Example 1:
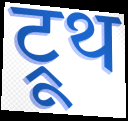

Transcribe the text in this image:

ट्रूथ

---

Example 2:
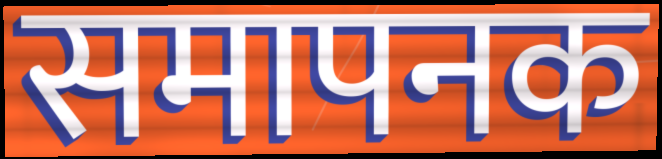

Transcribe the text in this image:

समापनक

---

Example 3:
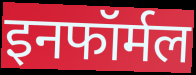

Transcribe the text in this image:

इनफॉर्मल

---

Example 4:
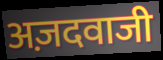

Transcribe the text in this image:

अज़दवाजी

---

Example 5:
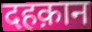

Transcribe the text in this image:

दहक़ान